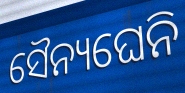
ସୈନ୍ୟଘେନି